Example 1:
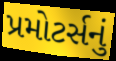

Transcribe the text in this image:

પ્રમોટર્સનું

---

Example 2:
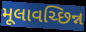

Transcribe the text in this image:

મૂલાવચ્છિન્ન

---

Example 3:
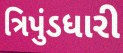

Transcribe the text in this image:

ત્રિપુંડધારી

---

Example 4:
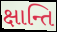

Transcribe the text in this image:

ક્ષાન્તિ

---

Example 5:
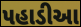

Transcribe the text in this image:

પહાડીઆ